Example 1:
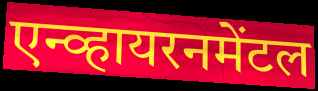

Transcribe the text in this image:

एन्व्हायरनमेंटल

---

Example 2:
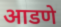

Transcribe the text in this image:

आडणे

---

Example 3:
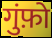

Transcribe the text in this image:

गुंफ़ो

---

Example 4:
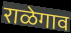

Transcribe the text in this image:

राळेगाव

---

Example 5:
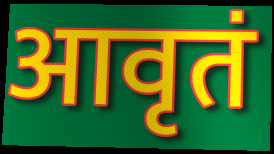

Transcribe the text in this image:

आवृतं